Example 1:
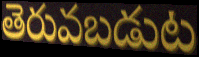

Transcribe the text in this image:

తెరువబడుట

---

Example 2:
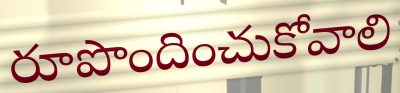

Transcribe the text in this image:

రూపొందించుకోవాలి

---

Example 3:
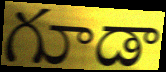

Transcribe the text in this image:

గూడా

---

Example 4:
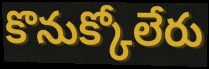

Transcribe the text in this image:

కొనుక్కోలేరు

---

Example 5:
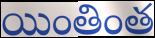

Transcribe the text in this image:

యింతింత